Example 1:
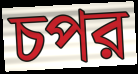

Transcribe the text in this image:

চপর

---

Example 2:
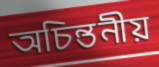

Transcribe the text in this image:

অচিন্তনীয়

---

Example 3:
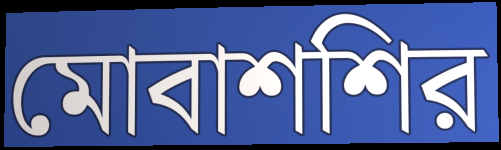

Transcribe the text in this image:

মোবাশশির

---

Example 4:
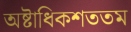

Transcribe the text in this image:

অষ্টাধিকশততম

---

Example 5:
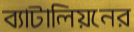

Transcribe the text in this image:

ব্যাটালিয়নের